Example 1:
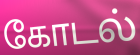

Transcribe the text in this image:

கோடல்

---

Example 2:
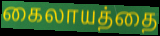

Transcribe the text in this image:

கைலாயத்தை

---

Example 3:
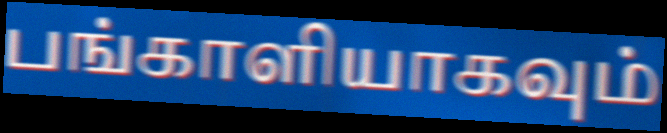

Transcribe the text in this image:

பங்காளியாகவும்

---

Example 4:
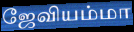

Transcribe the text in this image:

ஜேவியம்மா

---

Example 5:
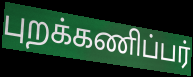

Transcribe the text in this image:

புறக்கணிப்பர்